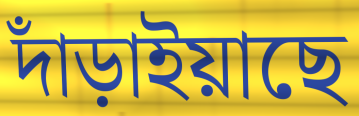
দাঁড়াইয়াছে